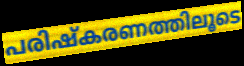
പരിഷ്കരണത്തിലൂടെ